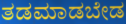
ತಡಮಾಡಬೇಡ